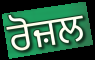
ਰੋਜ਼ਲ